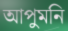
আপুমনি